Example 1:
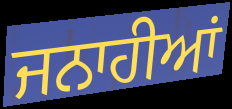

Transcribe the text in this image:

ਜਨਾਹੀਆਂ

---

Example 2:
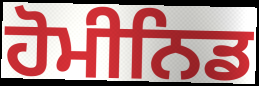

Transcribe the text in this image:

ਹੋਮੀਨਿਡ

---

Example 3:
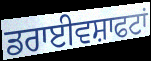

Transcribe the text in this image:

ਡਰਾਈਵਸ਼ਾਫਟਾਂ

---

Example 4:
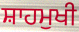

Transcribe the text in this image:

ਸ਼ਾਹਮੁਖੀ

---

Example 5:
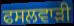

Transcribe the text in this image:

ਫਸਲਵਾੜੀ